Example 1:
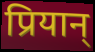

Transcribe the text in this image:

प्रियान्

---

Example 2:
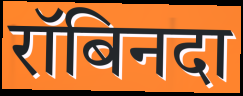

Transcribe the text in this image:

रॉबिनदा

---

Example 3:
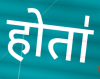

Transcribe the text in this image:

होता॑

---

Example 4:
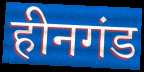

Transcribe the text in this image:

हीनगंड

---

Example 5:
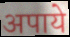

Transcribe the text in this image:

अपाये